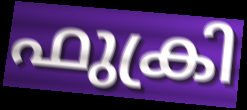
ഫുക്രി